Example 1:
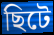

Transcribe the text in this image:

ছিটে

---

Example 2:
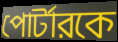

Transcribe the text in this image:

পোর্টারকে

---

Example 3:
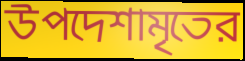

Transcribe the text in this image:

উপদেশামৃতের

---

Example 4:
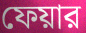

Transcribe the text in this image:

ফেয়ার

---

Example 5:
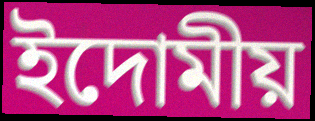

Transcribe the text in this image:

ইদোমীয়